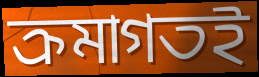
ক্রমাগতই